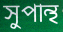
সুপান্থ